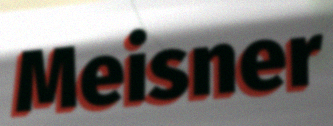
Meisner